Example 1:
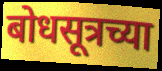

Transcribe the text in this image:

बोधसूत्रच्या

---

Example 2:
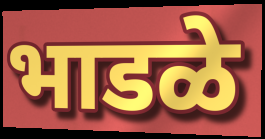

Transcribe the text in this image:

भाडळे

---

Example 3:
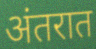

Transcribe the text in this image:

अंतरात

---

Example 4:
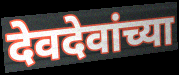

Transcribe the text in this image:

देवदेवांच्या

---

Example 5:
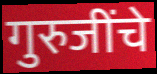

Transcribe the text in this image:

गुरुजींचे